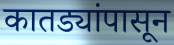
कातड्यांपासून